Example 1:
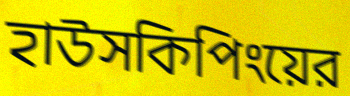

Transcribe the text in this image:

হাউসকিপিংয়ের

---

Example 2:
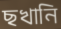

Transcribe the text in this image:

ছখানি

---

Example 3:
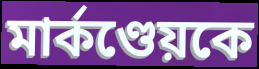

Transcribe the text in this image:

মার্কণ্ডেয়কে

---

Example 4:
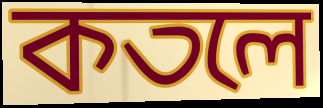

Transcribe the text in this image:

কতলে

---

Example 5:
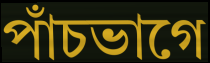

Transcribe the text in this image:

পাঁচভাগে